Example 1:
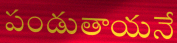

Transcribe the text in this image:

పండుతాయనే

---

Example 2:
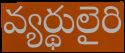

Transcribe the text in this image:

వ్యర్థులైరి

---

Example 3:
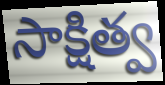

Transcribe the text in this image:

సాక్షిత్వ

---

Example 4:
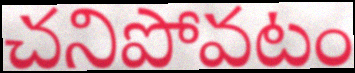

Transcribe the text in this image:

చనిపోవటం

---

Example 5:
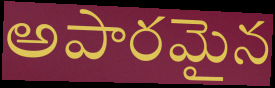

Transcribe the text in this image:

అపారమైన